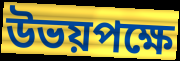
উভয়পক্ষে